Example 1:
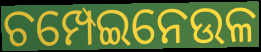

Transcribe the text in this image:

ଚମ୍ପେଇନେଉଳ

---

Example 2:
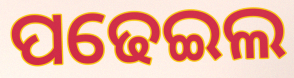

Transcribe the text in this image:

ପଢେଇଲ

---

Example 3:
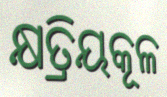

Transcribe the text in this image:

କ୍ଷତ୍ରିୟକୂଳ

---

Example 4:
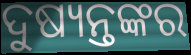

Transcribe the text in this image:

ଦୁଷ୍ୟନ୍ତଙ୍କର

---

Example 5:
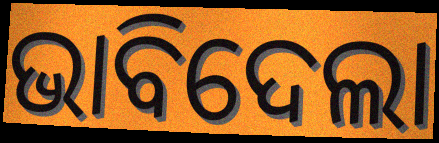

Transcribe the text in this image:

ଭାବିଦେଲା